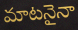
మాటనైనా